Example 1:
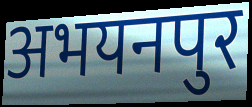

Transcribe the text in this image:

अभयनपुर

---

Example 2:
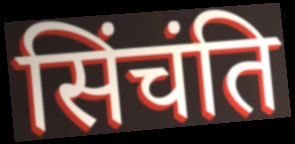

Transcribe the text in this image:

सिंचंति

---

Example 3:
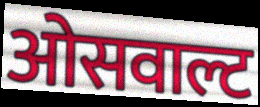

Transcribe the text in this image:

ओसवाल्ट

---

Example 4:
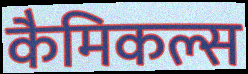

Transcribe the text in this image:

कैमिकल्स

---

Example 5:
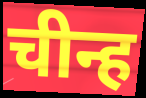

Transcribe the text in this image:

चीन्ह